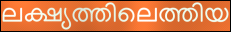
ലക്ഷ്യത്തിലെത്തിയ